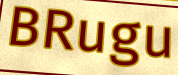
BRugu